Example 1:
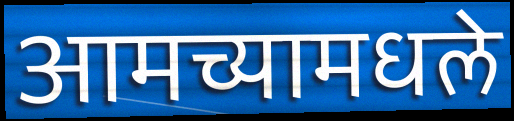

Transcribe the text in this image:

आमच्यामधले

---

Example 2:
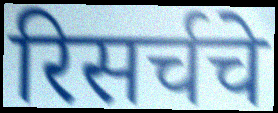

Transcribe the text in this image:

रिसर्चचे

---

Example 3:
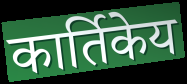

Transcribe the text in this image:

कार्तिकेय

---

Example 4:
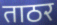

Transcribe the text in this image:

ताठर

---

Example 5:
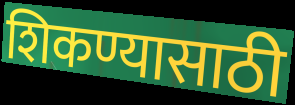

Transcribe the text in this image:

शिकण्यासाठी